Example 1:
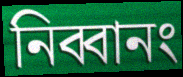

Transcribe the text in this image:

নিব্বানং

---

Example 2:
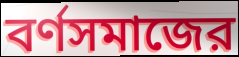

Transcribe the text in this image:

বর্ণসমাজের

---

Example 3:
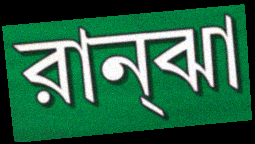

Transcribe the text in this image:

রান্ঝা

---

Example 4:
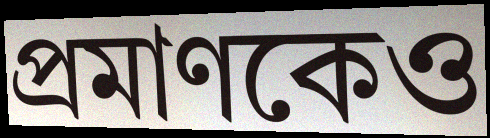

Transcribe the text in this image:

প্রমাণকেও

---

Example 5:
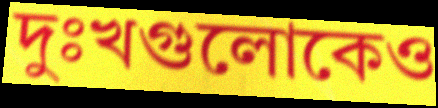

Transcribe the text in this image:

দুঃখগুলোকেও